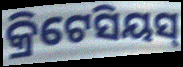
କ୍ରିଟେସିୟସ୍